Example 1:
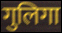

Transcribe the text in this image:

गुलिगा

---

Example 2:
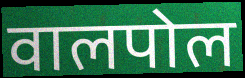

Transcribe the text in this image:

वालपोल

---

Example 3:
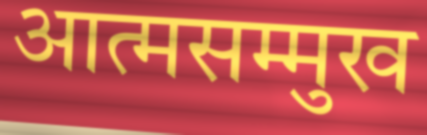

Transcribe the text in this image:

आत्मसम्मुख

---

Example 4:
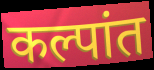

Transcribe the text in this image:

कल्पांत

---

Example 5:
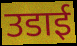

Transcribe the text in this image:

उडाई